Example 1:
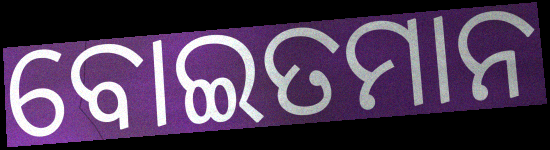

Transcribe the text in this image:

ବୋଇତମାନ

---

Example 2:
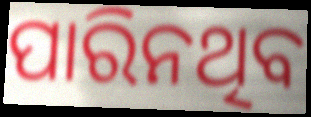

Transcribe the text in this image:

ପାରିନଥିବ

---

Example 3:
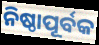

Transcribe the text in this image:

ନିଷ୍ଠାପୂର୍ବକ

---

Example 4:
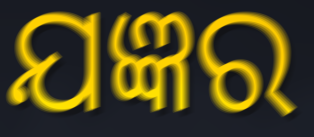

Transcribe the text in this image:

ଯଜ୍ଞର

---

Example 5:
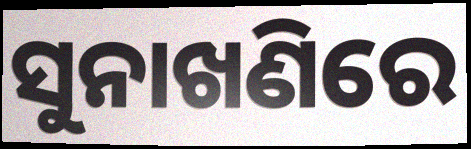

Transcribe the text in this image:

ସୁନାଖଣିରେ